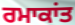
ਰਮਾਕਾਂਤ